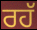
ਰਹੱ